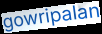
gowripalan